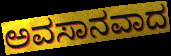
ಅವಸಾನವಾದ